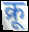
क्रू